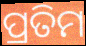
ପ୍ରତିମ